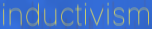
inductivism